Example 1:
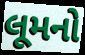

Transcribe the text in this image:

લૂમનો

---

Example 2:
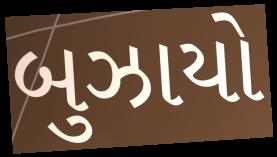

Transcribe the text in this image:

બુઝાયો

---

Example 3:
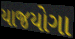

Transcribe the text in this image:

યાજયોગા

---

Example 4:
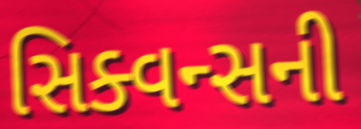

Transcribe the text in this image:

સિક્વન્સની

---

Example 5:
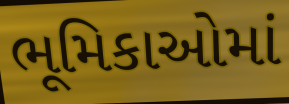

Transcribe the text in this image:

ભૂમિકાઓમાં